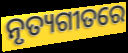
ନୃତ୍ୟଗୀତରେ